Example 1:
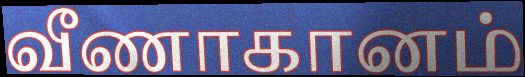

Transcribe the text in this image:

வீணாகானம்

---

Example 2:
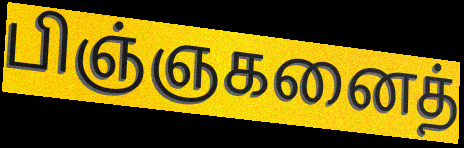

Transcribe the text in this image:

பிஞ்ஞகனைத்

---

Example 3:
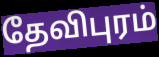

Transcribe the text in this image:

தேவிபுரம்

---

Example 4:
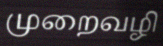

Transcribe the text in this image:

முறைவழி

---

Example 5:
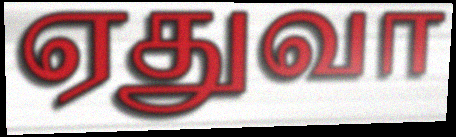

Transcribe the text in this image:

ஏதுவா